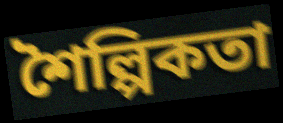
শৈল্পিকতা